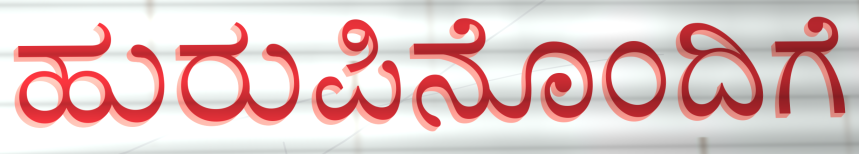
ಹುರುಪಿನೊಂದಿಗೆ